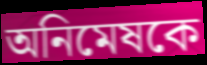
অনিমেষকে